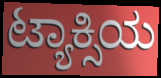
ಟ್ಯಾಕ್ಸಿಯ